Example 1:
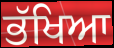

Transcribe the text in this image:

ਭੱਖਿਆ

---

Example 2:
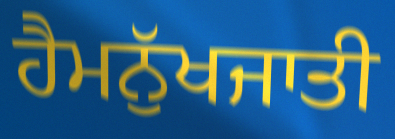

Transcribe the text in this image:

ਹੈਮਨੁੱਖਜਾਤੀ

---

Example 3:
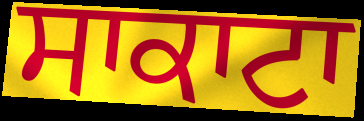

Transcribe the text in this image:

ਸਾਕਾਟਾ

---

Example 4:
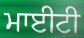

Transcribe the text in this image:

ਮਾਈਟੀ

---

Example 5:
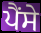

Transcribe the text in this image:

ਪੈਂਸੇ